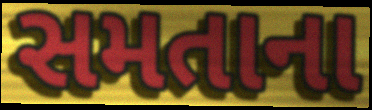
સમતાના